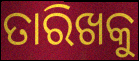
ତାରିଖକୁ